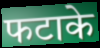
फटाके